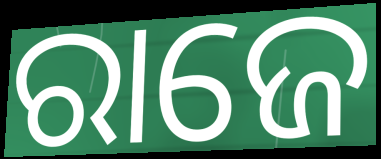
ରାଜେ